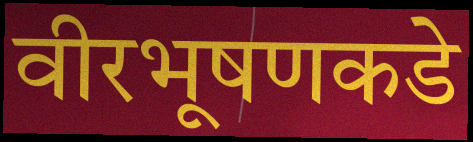
वीरभूषणकडे